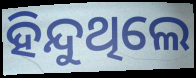
ହିନ୍ଦୁଥିଲେ